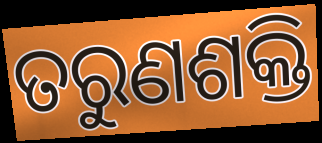
ତରୁଣଶକ୍ତି